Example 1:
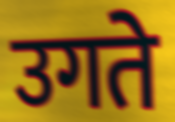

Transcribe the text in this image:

उगते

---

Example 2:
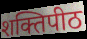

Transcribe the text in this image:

शक्तिपीठ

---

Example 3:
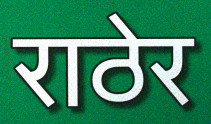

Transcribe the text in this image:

राठेर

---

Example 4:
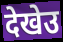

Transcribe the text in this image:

देखेउ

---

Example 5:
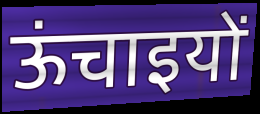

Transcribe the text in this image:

ऊंचाइयों